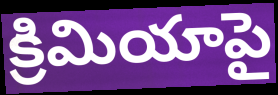
క్రిమియాపై